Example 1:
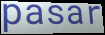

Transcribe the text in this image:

pasar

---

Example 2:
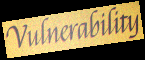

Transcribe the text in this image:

Vulnerability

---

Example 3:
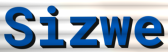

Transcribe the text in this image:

Sizwe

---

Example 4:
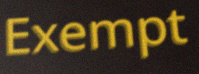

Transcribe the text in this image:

Exempt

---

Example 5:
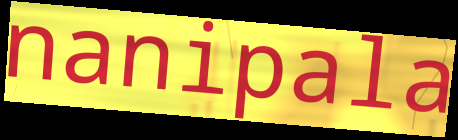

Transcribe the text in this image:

nanipala